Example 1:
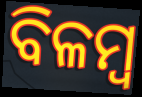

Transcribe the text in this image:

ବିଳମ୍ଵ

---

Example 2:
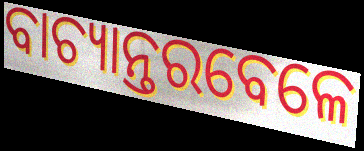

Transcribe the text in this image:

ବାଚ୍ୟାନ୍ତରବେଳେ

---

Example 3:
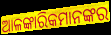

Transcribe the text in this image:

ଆଳଙ୍କାରିକମାନଙ୍କର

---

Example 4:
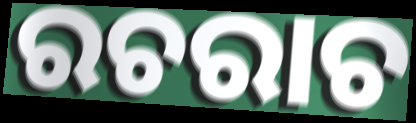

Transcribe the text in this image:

ରଚରାଚ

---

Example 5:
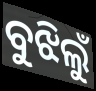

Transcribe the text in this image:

ବୁଝିଲୁଁ